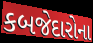
કબજેદારોના